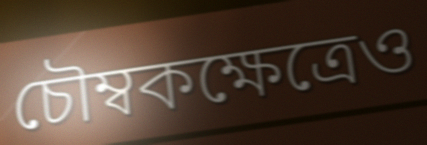
চৌম্বকক্ষেত্রেও